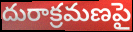
దురాక్రమణపై